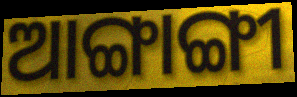
ଆଙ୍ଗାଙ୍ଗୀ